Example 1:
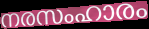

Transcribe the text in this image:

നരസംഹാരം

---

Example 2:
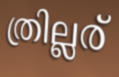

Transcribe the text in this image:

ത്രില്ലര്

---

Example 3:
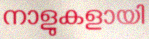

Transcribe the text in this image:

നാളുകളായി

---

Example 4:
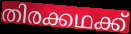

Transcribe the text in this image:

തിരക്കഥക്ക്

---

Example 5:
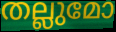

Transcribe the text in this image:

തല്ലുമോ